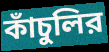
কাঁচুলির